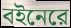
বইনেরে